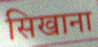
सिखाना